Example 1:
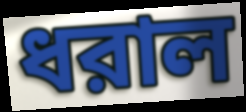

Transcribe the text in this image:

ধরাল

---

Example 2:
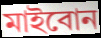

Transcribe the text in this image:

মাইবোন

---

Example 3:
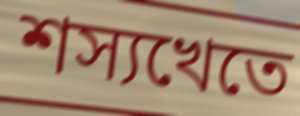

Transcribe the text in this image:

শস্যখেতে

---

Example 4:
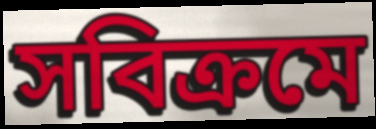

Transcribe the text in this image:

সবিক্রমে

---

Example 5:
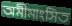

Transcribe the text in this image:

অমীমাংসিত